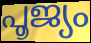
പൂജ്യം